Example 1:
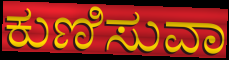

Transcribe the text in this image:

ಕುಣಿಸುವಾ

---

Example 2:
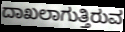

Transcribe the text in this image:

ದಾಖಲಾಗುತ್ತಿರುವ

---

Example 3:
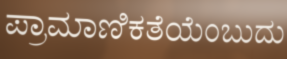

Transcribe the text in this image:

ಪ್ರಾಮಾಣಿಕತೆಯೆಂಬುದು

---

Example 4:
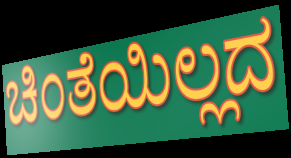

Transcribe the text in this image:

ಚಿಂತೆಯಿಲ್ಲದ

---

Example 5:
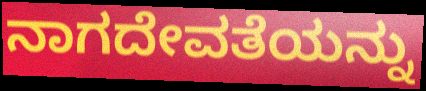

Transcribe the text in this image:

ನಾಗದೇವತೆಯನ್ನು